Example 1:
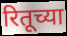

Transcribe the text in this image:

रितूच्या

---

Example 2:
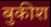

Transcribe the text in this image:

बुकीश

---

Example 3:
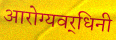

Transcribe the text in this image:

आरोग्यवर्धिनी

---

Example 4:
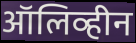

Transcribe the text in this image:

ऑलिव्हीन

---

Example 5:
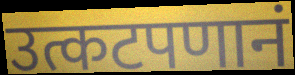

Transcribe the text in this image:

उत्कटपणानं